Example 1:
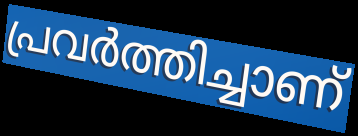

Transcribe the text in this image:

പ്രവർത്തിച്ചാണ്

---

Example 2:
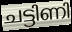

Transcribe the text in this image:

ചട്ടിണി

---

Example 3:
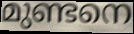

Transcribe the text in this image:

മുണ്ടനെ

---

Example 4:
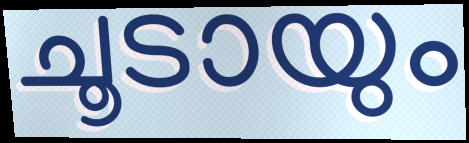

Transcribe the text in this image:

ചൂടായും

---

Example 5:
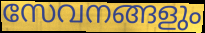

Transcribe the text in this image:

സേവനങ്ങളും